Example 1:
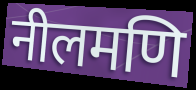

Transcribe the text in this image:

नीलमणि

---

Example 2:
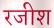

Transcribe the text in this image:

रजीश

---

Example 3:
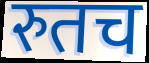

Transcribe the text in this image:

रुतच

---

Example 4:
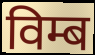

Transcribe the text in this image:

विम्ब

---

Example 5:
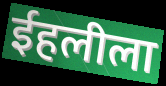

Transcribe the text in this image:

ईहलीला